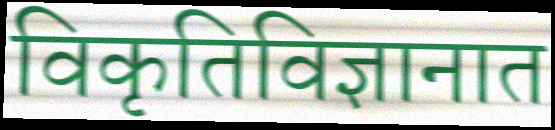
विकृतिविज्ञानात